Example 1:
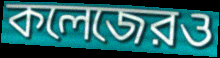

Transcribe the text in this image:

কলেজেরও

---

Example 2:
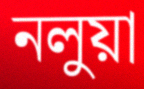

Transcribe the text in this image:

নলুয়া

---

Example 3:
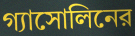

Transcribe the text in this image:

গ্যাসোলিনের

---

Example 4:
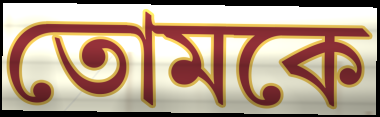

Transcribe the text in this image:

তোমকে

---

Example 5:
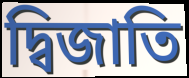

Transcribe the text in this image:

দ্বিজাতি